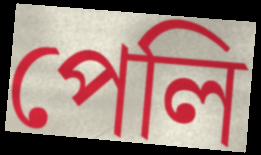
পেলি